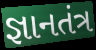
જ્ઞાનતંત્ર